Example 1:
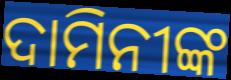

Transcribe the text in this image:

ଦାମିନୀଙ୍କ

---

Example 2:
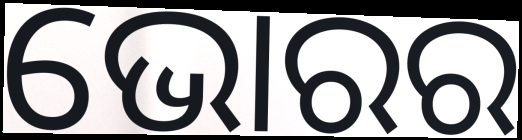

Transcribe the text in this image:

ଭୋରର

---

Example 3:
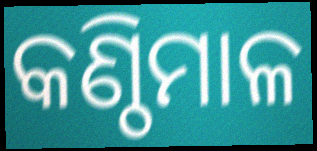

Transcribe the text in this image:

କଣ୍ଠିମାଳ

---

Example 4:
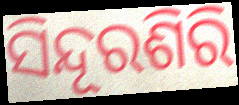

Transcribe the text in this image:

ସିନ୍ଦୂରଶିରି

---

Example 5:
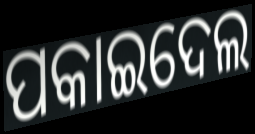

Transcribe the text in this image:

ପକାଇଦେଲ